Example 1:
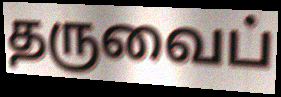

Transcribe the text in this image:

தருவைப்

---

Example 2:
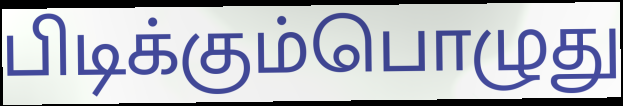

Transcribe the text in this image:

பிடிக்கும்பொழுது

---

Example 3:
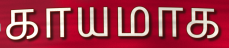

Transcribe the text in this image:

காயமாக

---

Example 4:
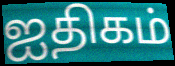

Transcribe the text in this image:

ஐதிகம்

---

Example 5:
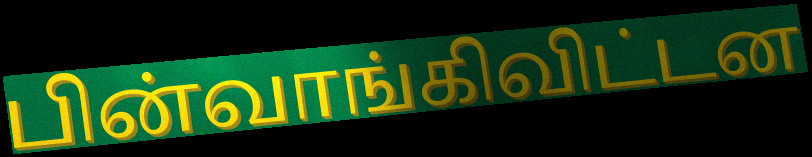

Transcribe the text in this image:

பின்வாங்கிவிட்டன